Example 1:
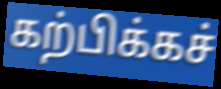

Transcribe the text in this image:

கற்பிக்கச்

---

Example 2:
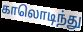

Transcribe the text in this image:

காலொடிந்து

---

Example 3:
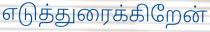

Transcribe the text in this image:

எடுத்துரைக்கிறேன்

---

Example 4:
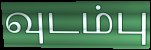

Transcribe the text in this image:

வுடம்பு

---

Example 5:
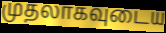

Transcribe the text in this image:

முதலாகவுடைய